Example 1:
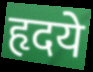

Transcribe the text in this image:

हृदये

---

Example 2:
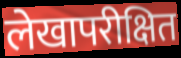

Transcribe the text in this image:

लेखापरीक्षित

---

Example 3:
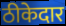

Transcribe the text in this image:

ठीकेदार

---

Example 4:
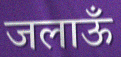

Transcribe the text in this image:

जलाऊँ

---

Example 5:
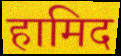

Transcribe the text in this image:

हामिद